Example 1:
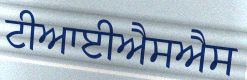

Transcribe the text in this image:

ਟੀਆਈਐਸਐਸ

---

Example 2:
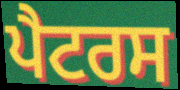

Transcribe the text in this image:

ਪੈਟਰਸ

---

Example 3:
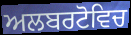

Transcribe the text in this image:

ਅਲਬਰਟੋਵਿਚ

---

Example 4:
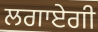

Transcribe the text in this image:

ਲਗਾਏਗੀ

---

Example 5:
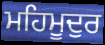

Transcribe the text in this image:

ਮਹਿਮੂਦੁਰ